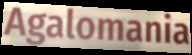
Agalomania